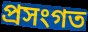
প্ৰসংগত